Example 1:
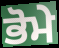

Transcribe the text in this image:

ਭੋਮੇ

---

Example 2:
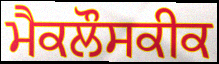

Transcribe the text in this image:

ਮੈਕਲੌਸਕੀਕ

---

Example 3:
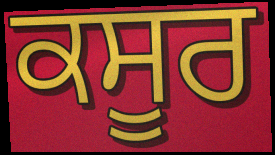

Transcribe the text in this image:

ਕਸੂਰ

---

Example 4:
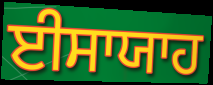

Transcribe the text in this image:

ਈਸਾਯਾਹ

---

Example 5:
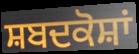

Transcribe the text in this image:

ਸ਼ਬਦਕੋਸ਼ਾਂ